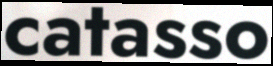
catasso